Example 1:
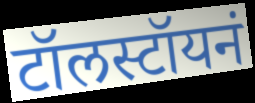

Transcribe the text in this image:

टॉलस्टॉयनं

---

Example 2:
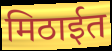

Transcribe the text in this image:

मिठाईत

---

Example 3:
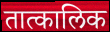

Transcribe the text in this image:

तात्कालिक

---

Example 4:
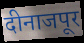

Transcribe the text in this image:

दीनाजपूर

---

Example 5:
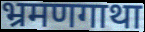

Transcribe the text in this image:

भ्रमणगाथा